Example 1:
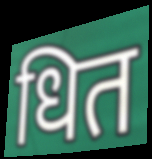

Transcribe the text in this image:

धित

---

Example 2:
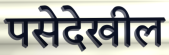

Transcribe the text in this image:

पसेदेखील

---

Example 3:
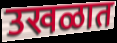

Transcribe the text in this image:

उखळात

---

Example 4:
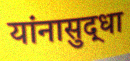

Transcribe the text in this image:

यांनासुद्धा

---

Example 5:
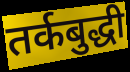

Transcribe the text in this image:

तर्कबुद्धी